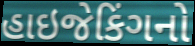
હાઇજેકિંગનો